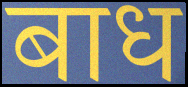
बाध